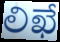
లిఖే